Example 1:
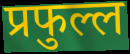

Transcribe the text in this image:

प्रफुल्ल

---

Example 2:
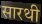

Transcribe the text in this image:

सारथी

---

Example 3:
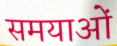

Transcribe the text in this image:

समयाओं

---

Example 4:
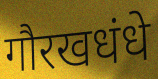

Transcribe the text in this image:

गौरखधंधे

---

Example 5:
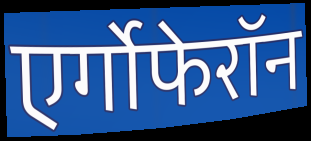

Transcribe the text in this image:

एर्गोफेरॉन